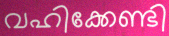
വഹിക്കേണ്ടി